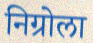
निग्रोला